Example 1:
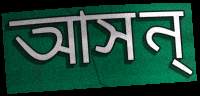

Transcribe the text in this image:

আসন্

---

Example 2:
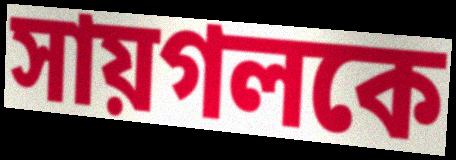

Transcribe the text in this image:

সায়গলকে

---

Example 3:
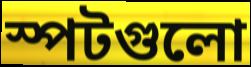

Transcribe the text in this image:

স্পটগুলো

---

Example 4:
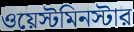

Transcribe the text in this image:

ওয়েস্টমিনস্টার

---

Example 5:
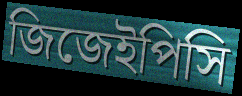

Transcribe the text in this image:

জিজেইপিসি